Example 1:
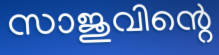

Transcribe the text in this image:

സാജുവിന്റെ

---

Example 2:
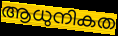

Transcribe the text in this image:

ആധുനികത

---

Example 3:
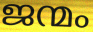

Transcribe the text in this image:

ജന്മം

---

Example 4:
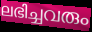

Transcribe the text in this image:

ലഭിച്ചവരും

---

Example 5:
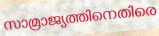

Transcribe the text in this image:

സാമ്രാജ്യത്തിനെതിരെ